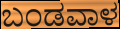
ಬಂಡವಾಳ